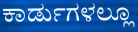
ಕಾರ್ಡುಗಳಲ್ಲೂ